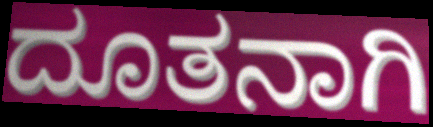
ದೂತನಾಗಿ